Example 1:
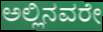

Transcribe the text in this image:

ಅಲ್ಲಿನವರೇ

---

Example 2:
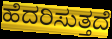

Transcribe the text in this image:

ಹೆದರಿಸುತ್ತದೆ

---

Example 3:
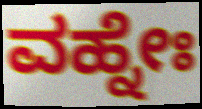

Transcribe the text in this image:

ವಹ್ನೇಃ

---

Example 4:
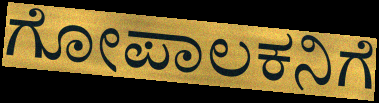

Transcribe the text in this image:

ಗೋಪಾಲಕನಿಗೆ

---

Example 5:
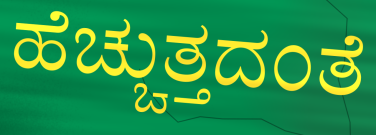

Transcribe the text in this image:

ಹೆಚ್ಚುತ್ತದಂತೆ